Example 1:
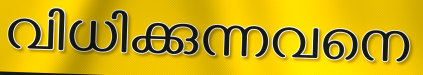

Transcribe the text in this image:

വിധിക്കുന്നവനെ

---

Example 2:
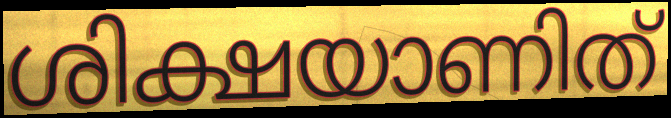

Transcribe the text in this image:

ശിക്ഷയാണിത്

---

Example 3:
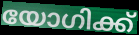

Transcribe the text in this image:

യോഗിക്ക്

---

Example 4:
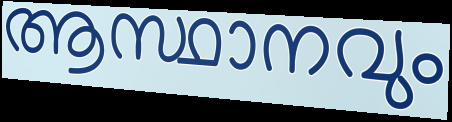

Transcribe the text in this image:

ആസ്ഥാനവും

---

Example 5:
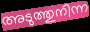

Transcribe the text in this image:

അടുത്തുനിന്ന